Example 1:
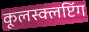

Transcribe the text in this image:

कूलस्क्लप्टिंग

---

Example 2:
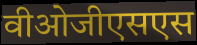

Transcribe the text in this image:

वीओजीएसएस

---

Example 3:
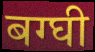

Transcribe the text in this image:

बग्घी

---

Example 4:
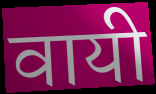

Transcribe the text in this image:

वायी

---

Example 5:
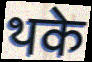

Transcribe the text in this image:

थके